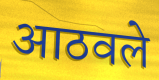
आठवले